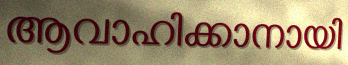
ആവാഹിക്കാനായി